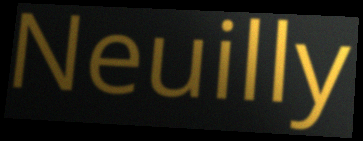
Neuilly